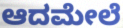
ಆದಮೇಲೆ